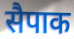
सैपाक